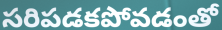
సరిపడకపోవడంతో